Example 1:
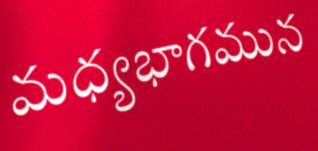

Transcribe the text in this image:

మధ్యభాగమున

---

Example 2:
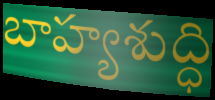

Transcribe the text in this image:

బాహ్యశుద్ధి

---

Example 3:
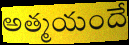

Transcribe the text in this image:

అత్మయందే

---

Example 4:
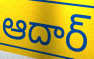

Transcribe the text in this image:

ఆదార్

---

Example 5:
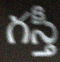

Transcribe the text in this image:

గస్తీ